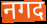
नगद